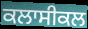
ਕਲਾਸੀਕਲ